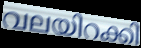
വലയിറക്കി